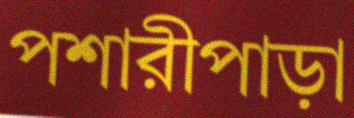
পশারীপাড়া